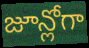
జూన్లోగా